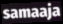
samaaja